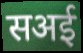
सअई